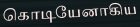
கொடியேனாகிய